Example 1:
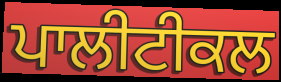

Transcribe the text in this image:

ਪਾਲੀਟੀਕਲ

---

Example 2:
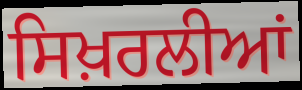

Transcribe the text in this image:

ਸਿਖ਼ਰਲੀਆਂ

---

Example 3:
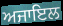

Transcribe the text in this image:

ਅਜਾਇਲ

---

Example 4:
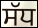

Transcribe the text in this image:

ਸੱਧ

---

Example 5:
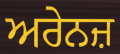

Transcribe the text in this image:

ਅਰੇਨਜ਼